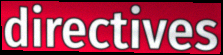
directives